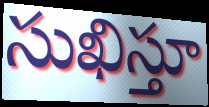
సుఖిస్తూ